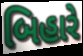
બિહારે